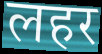
लहर